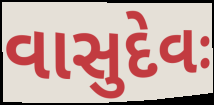
વાસુદેવઃ